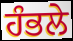
ਹੰਭਲੇ